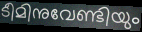
ടീമിനുവേണ്ടിയും